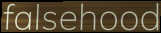
falsehood